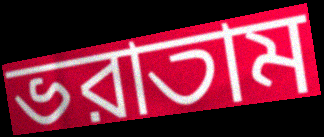
ভরাতাম